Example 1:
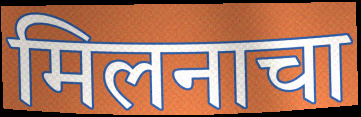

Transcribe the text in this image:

मिलनाचा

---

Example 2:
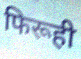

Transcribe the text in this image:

फिरूही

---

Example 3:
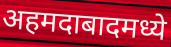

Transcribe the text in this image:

अहमदाबादमध्ये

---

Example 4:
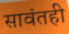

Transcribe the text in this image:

सावंतही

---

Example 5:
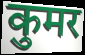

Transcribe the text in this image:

कुमर